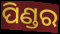
ପିଣ୍ଡର